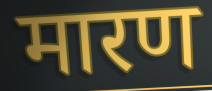
मारण